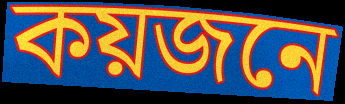
কয়জনে